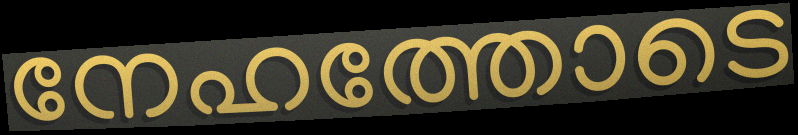
നേഹത്തോടെ